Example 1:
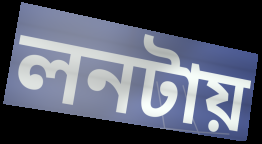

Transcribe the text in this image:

লনটায়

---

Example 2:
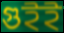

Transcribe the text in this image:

গুইই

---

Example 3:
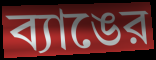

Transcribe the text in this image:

ব্যাঙের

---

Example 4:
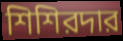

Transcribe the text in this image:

শিশিরদার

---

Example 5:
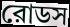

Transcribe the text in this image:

রোডস